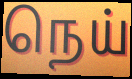
நெய்